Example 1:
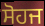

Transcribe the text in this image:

ਸੋਹਜ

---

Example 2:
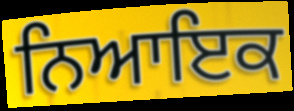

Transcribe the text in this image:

ਨਿਆਇਕ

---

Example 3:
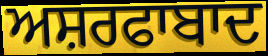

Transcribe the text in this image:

ਅਸ਼ਰਫਾਬਾਦ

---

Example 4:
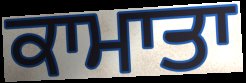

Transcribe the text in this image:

ਕਾਮਾਤਾ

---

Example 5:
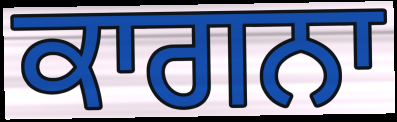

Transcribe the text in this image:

ਕਾਗਨਾ